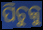
ପିଚୁକୁ